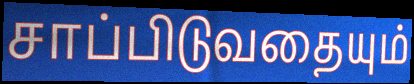
சாப்பிடுவதையும்